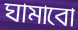
ঘামাবো